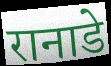
रानाडे